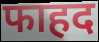
फाहद